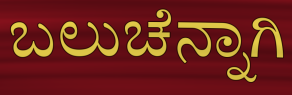
ಬಲುಚೆನ್ನಾಗಿ